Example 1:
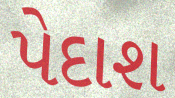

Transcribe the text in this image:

પેદાશ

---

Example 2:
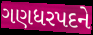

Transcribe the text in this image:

ગણધરપદને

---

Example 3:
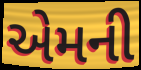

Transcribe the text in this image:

એમની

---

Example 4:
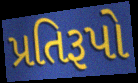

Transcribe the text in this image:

પ્રતિરૂપો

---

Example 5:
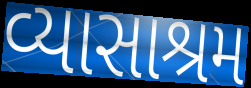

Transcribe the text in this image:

વ્યાસાશ્રમ